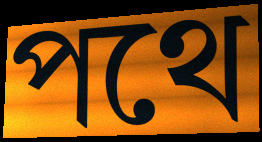
পথে